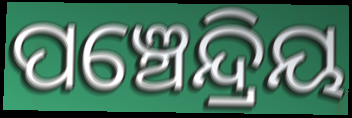
ପଞ୍ଚେନ୍ଦ୍ରିୟ